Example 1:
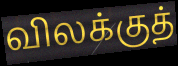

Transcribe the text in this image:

விலக்குத்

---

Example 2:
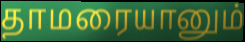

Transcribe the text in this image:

தாமரையானும்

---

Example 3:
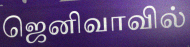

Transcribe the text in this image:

ஜெனிவாவில்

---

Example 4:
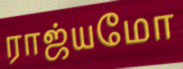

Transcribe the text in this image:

ராஜ்யமோ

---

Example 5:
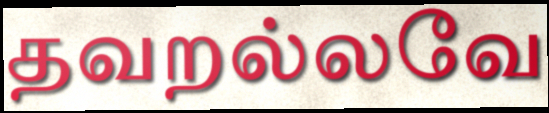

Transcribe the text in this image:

தவறல்லவே